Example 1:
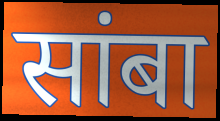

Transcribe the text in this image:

सांबा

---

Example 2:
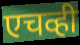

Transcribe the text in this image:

एचव्ही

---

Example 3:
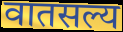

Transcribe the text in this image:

वातसल्य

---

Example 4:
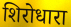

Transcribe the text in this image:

शिरोधारा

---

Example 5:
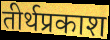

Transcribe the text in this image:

तीर्थप्रकाश